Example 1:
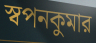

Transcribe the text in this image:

স্বপনকুমার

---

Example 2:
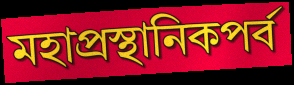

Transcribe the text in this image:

মহাপ্রস্থানিকপর্ব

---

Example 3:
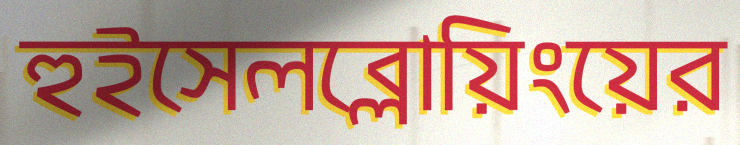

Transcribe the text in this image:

হুইসেলব্লোয়িংয়ের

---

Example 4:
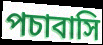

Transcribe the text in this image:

পচাবাসি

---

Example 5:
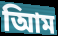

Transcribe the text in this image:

আিম